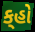
ક્‌હો